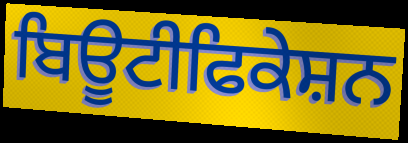
ਬਿਊਟੀਫਿਕੇਸ਼ਨ